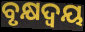
ବୃକ୍ଷଦ୍ୱୟ